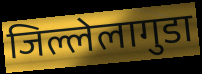
जिल्लेलागुडा